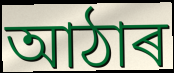
আঠাৰ